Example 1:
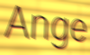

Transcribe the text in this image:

Ange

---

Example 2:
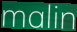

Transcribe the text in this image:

malin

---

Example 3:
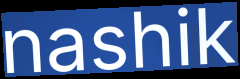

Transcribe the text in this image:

nashik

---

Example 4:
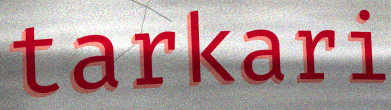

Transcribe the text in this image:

tarkari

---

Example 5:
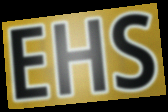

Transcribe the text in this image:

EHS